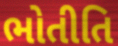
ભોતીતિ